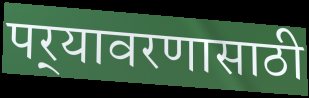
पर्यावरणासाठी